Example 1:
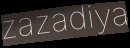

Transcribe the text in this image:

zazadiya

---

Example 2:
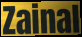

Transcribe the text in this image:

Zainal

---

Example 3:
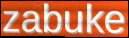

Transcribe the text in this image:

zabuke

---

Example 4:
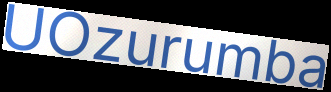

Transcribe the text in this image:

UOzurumba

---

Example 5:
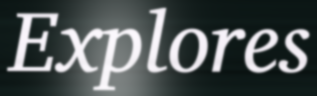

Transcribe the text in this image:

Explores